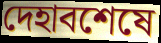
দেহাবশেষে